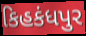
કિહકંધપુર